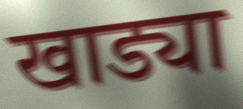
खाड्या